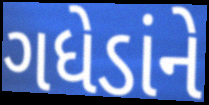
ગધેડાંને